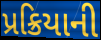
પ્રક્રિયાની